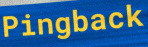
Pingback